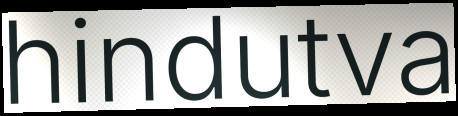
hindutva